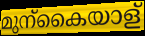
മുന്കൈയാള്